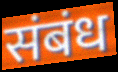
संबंध